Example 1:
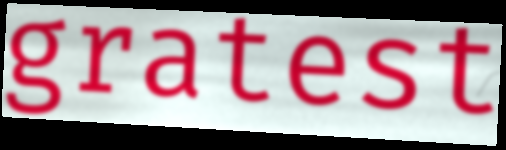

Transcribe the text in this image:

gratest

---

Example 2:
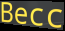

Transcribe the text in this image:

Becc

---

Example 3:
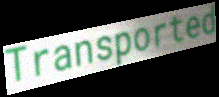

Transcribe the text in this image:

Transported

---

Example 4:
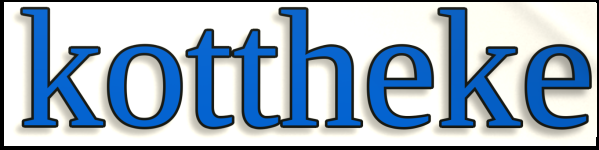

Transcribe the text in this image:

kottheke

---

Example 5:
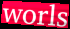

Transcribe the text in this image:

worls